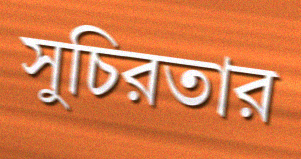
সুচিরতার